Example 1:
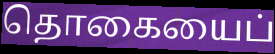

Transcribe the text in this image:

தொகையைப்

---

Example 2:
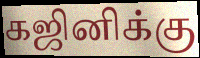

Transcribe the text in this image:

கஜினிக்கு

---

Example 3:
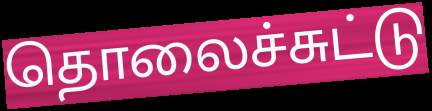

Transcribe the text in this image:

தொலைச்சுட்டு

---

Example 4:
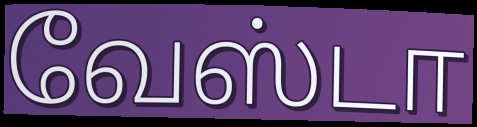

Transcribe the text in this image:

வேஸ்டா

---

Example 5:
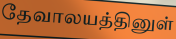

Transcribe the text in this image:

தேவாலயத்தினுள்